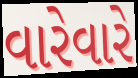
વારેવારે